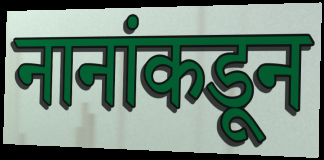
नानांकडून